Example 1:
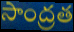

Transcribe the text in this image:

సాంద్రత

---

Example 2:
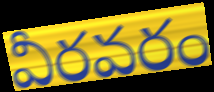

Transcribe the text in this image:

వీరవరం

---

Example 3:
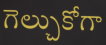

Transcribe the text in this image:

గెల్చుకోగా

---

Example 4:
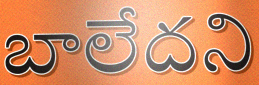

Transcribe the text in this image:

బాలేదని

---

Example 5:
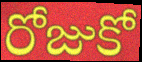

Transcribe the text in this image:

రోజుకో